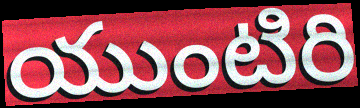
యుంటిరి